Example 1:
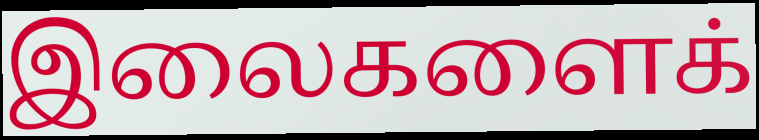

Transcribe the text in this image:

இலைகளைக்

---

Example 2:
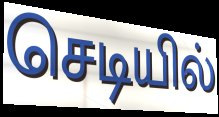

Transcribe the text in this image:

செடியில்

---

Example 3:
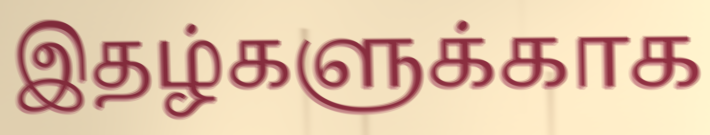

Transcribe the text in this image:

இதழ்களுக்காக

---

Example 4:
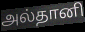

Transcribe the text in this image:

அல்தானி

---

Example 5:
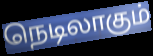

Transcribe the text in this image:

நெடிலாகும்